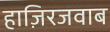
हाज़िरजवाब